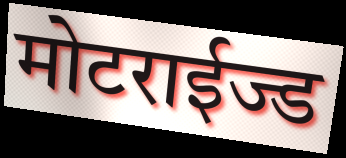
मोटराईज्ड